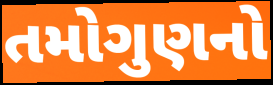
તમોગુણનો